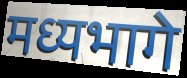
मध्यभागे